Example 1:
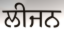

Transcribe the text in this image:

ਲੀਜਨ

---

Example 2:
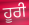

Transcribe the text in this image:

ਹੂਰੀ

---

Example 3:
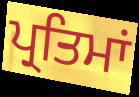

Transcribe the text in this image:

ਪ੍ਰਤਿਮਾਂ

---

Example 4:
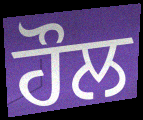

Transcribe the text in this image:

ਹੌਲ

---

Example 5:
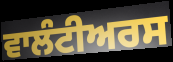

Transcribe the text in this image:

ਵਾਲੰਟੀਅਰਸ